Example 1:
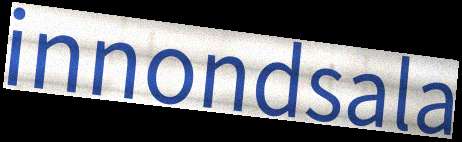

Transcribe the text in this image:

innondsala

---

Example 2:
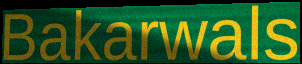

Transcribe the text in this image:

Bakarwals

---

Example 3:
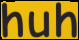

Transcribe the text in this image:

huh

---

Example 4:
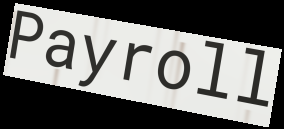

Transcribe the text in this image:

Payroll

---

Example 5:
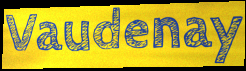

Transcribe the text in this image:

Vaudenay